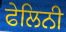
ਫੇਲਿਨੀ